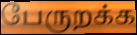
பேருறக்க